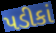
પડીકાં